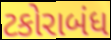
ટકોરાબંધ